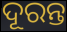
ଦୂରନ୍ତ